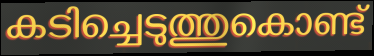
കടിച്ചെടുത്തുകൊണ്ട്